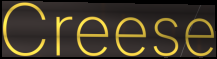
Creese